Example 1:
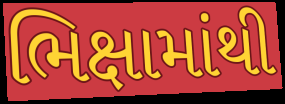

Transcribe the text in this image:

ભિક્ષામાંથી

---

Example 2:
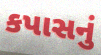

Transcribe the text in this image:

કપાસનું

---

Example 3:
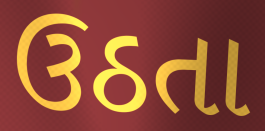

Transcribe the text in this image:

ઉઠતા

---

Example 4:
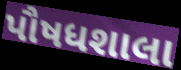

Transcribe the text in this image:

પૌષધશાલા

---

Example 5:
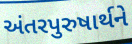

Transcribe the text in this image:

અંતરપુરુષાર્થને